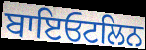
ਬਾਇਓਟਲਿਨ